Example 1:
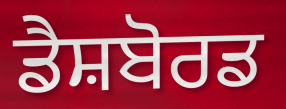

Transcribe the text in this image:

ਡੈਸ਼ਬੋਰਡ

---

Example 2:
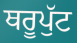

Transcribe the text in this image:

ਥਰੂਪੁੱਟ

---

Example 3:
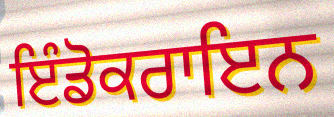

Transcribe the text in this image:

ਇੰਡੋਕਰਾਇਨ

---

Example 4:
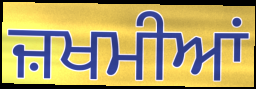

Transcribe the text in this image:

ਜ਼ਖਮੀਆਂ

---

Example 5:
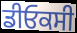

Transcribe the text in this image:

ਡੀਓਕਸੀ